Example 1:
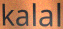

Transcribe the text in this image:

kalal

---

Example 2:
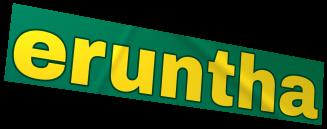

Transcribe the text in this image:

eruntha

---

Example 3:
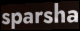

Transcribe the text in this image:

sparsha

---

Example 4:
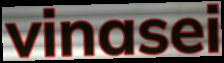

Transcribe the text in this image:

vinasei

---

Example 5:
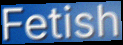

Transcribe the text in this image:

Fetish